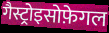
गैस्ट्रोइसोफ़ेगल